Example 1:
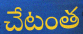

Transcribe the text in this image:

చేటంత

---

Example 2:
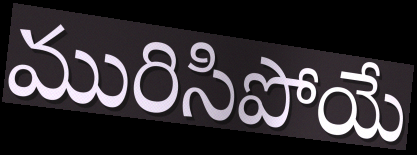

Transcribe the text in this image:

మురిసిపోయే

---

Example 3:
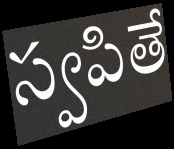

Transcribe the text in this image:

స్వపితే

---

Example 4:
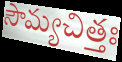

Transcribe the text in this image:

సౌమ్యచిత్తః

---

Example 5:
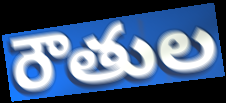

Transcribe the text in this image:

రౌతుల